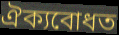
ঐক্যবোধত